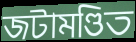
জটামণ্ডিত